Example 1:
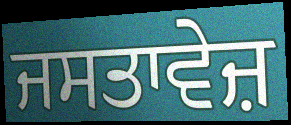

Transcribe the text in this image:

ਜਸਤਾਵੇਜ਼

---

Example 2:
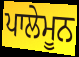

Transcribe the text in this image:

ਪਾਲੇਮੂਨ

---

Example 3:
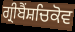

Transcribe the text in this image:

ਗ੍ਰੀਬੈਂਸ਼ਚਿਕੋਵ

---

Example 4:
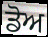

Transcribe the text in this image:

ਡੋਅ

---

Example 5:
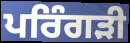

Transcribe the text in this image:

ਪਰਿੰਗੜੀ